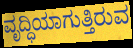
ವೃದ್ಧಿಯಾಗುತ್ತಿರುವ